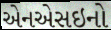
એનએસઇનો